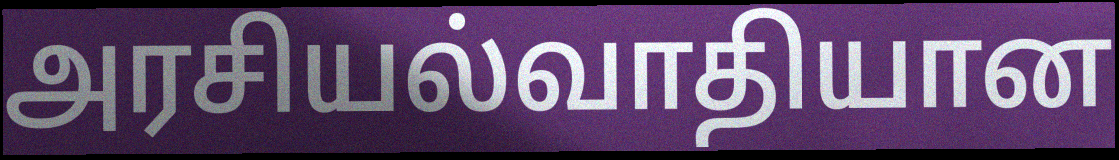
அரசியல்வாதியான